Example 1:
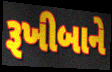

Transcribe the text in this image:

રૂખીબાને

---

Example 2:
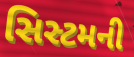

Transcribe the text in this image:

સિસ્ટમની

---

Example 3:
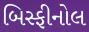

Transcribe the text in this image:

બિસ્ફીનોલ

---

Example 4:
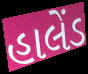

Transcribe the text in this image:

હાલેંડ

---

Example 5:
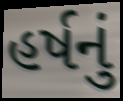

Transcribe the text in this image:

હર્ષનું